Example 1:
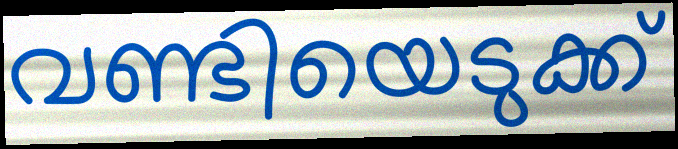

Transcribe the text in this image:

വണ്ടിയെടുക്ക്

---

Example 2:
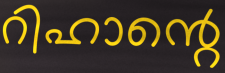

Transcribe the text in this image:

റിഹാന്റെ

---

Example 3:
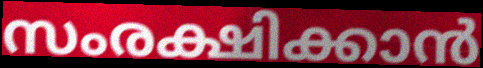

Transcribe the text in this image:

സംരക്ഷിക്കാൻ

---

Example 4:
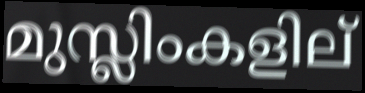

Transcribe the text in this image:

മുസ്ലിംകളില്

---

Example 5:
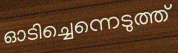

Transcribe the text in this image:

ഓടിച്ചെന്നെടുത്ത്